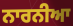
ਨਾਰਨੀਆ